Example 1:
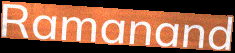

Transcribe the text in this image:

Ramanand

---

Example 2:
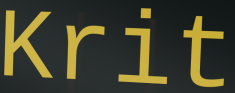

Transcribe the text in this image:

Krit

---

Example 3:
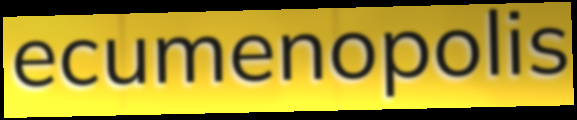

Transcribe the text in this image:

ecumenopolis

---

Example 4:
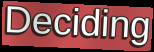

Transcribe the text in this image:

Deciding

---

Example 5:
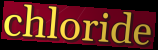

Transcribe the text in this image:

chloride